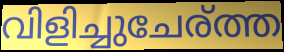
വിളിച്ചുചേര്ത്ത